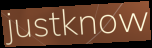
justknow